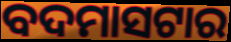
ବଦମାସଟାର